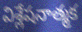
విశ్లేషనాత్మక